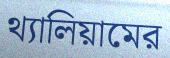
থ্যালিয়ামের